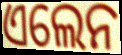
ଏଲେନ